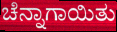
ಚೆನ್ನಾಗಾಯಿತು